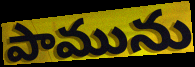
పామును